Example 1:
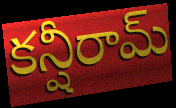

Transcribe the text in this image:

కన్షీరామ్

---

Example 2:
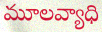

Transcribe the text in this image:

మూలవ్యాధి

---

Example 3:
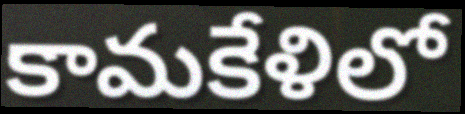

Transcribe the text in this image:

కామకేళిలో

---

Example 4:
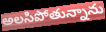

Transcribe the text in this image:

అలసిపోతున్నాను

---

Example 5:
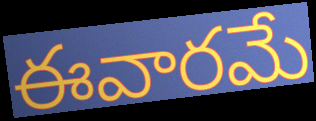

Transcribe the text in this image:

ఈవారమే